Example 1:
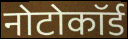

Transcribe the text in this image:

नोटोकॉर्ड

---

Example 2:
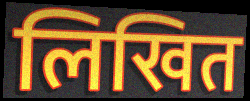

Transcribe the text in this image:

लिखित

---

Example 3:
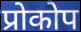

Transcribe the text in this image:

प्रोकोप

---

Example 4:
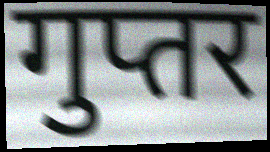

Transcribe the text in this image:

गुप्तर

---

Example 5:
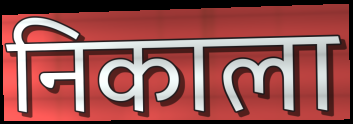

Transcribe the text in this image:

निकाला